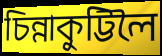
চিন্নাকুট্টিলৈ